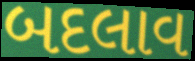
બદલાવ